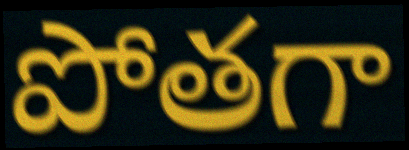
పోతగా